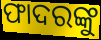
ଫାଦରଙ୍କୁ